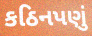
કઠિનપણું